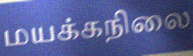
மயக்கநிலை